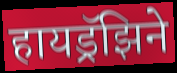
हायड्रॅझिने